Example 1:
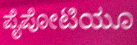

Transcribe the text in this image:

ಪೈಪೋಟಿಯೂ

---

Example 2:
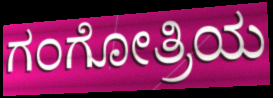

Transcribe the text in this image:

ಗಂಗೋತ್ರಿಯ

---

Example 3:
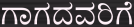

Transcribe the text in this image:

ಗಾಗದವರಿಗೆ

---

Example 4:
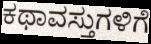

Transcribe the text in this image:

ಕಥಾವಸ್ತುಗಳಿಗೆ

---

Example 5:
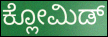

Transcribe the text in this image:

ಕ್ಲೋಮಿಡ್